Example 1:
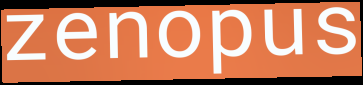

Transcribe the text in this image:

zenopus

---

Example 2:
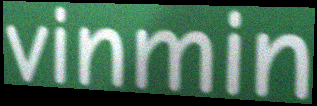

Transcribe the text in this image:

vinmin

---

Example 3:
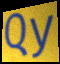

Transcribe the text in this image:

Qy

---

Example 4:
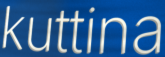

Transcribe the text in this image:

kuttina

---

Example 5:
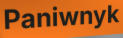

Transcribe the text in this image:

Paniwnyk